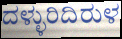
ದಳ್ಳುರಿದಿರುಳ